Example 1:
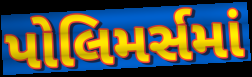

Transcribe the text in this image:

પોલિમર્સમાં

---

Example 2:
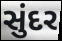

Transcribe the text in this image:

સુંદર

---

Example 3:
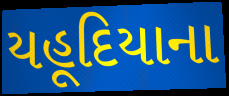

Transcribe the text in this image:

યહૂદિયાના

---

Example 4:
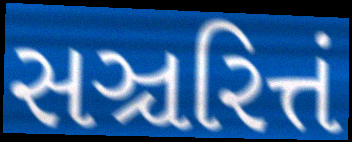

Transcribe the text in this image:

સઞ્ચરિત્તં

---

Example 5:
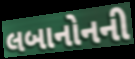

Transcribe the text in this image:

લબાનોનની